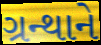
ગ્રન્થાને